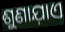
ଶୁଣାଯ଼ାଏ